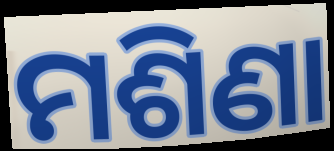
ମଶିଣା